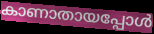
കാണാതായപ്പോൾ